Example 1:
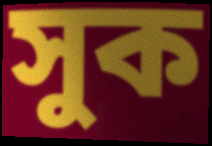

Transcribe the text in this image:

সুক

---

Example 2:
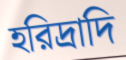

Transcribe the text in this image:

হরিদ্রাদি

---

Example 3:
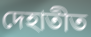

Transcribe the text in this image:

দেহাতীত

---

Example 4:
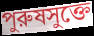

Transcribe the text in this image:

পুরুষসুক্তে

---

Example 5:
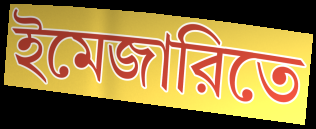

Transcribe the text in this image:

ইমেজারিতে